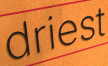
driest